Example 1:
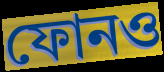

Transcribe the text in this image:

ফোনও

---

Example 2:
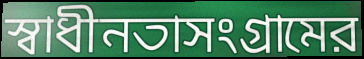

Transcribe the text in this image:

স্বাধীনতাসংগ্রামের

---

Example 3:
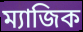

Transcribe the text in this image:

ম্যাজিক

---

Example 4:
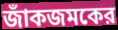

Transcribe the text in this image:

জাঁকজমকের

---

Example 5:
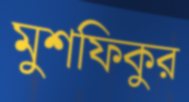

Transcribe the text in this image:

মুশফিকুর